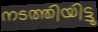
നടത്തിയിട്ടു